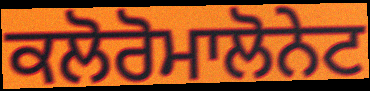
ਕਲੋਰੋਮਾਲੋਨੇਟ